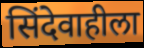
सिंदेवाहीला